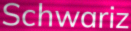
Schwariz